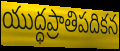
యుద్ధప్రాతిపదికన